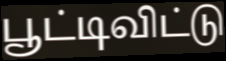
பூட்டிவிட்டு